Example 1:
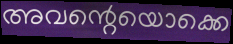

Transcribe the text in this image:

അവന്റെയൊക്കെ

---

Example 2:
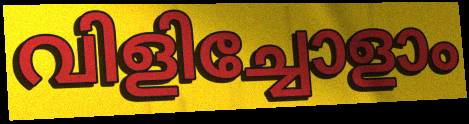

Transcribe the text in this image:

വിളിച്ചോളാം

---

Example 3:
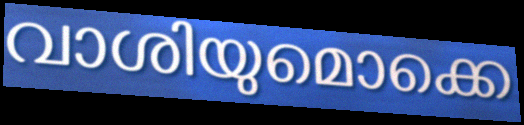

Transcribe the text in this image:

വാശിയുമൊക്കെ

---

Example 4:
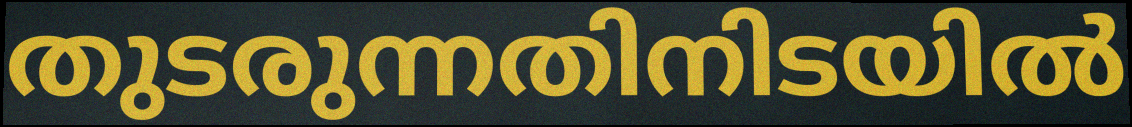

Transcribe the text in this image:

തുടരുന്നതിനിടയിൽ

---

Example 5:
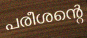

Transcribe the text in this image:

പരീശന്റെ